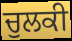
ਚੁਲਕੀ